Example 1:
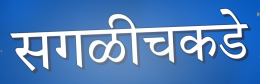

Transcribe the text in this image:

सगळीचकडे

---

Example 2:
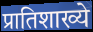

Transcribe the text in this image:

प्रातिशाख्ये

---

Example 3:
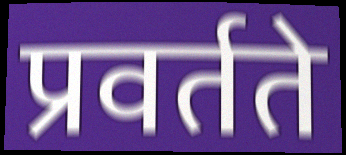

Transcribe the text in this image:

प्रवर्तते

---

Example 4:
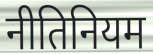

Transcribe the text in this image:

नीतिनियम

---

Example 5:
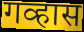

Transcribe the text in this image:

गव्हास